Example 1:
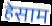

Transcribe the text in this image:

हेसाम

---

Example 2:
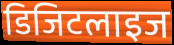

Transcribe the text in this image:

डिजिटलाइज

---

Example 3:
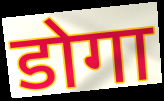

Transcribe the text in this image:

डोगा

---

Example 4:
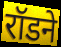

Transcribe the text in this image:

रॉडने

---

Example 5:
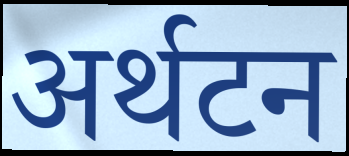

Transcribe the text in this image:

अर्थटन